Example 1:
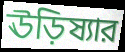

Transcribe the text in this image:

ঊড়িষ্যার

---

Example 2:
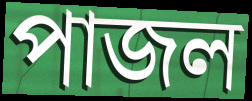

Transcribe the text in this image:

পাজল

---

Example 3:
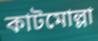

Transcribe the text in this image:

কাটমোল্লা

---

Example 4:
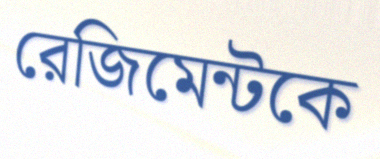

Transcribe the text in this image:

রেজিমেন্টকে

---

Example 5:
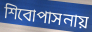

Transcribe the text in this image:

শিবোপাসনায়